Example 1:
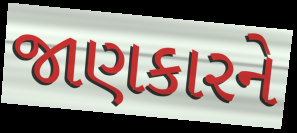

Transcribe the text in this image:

જાણકારને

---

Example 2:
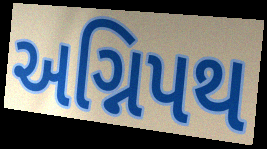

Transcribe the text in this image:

અગ્નિપથ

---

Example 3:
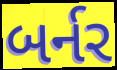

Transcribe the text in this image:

બર્નર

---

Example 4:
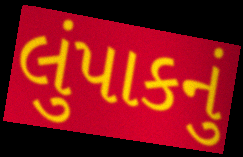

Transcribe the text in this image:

લુંપાકનું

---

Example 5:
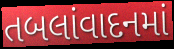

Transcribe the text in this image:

તબલાંવાદનમાં